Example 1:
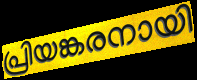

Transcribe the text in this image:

പ്രിയങ്കരനായി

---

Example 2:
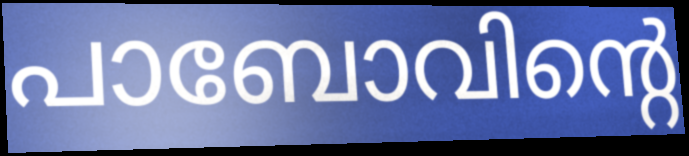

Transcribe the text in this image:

പാബോവിന്റെ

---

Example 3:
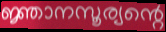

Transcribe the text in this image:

ജ്ഞാനസൂര്യന്റെ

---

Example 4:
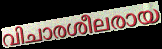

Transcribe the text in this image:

വിചാരശീലരായ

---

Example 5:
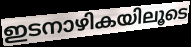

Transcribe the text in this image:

ഇടനാഴികയിലൂടെ